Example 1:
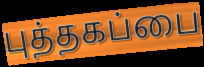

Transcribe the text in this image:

புத்தகப்பை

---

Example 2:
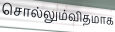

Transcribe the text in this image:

சொல்லும்விதமாக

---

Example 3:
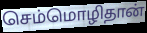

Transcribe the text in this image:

செம்மொழிதான்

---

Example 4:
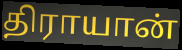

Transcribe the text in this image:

திராயான்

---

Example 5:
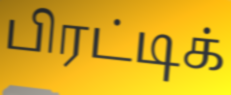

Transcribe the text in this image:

பிரட்டிக்